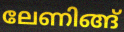
ലേണിങ്ങ്